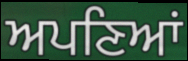
ਅਪਣਿਆਂ